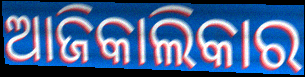
ଆଜିକାଲିକାର